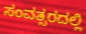
ಸಂವತ್ಸರದಲ್ಲಿ